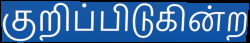
குறிப்பிடுகின்ற